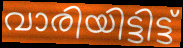
വാരിയിട്ടിട്ട്